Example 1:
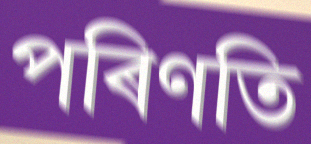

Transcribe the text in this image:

পৰিণতি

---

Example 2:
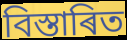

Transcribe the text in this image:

বিস্তাৰিত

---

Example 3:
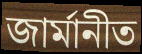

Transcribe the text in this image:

জাৰ্মানীত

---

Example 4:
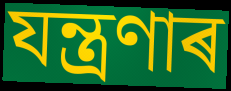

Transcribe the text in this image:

যন্ত্ৰণাৰ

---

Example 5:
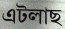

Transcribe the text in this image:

এটলাছ